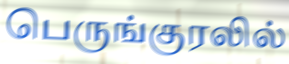
பெருங்குரலில்